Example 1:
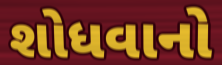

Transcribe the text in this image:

શોધવાનો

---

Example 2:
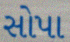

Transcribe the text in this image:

સોપા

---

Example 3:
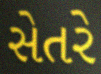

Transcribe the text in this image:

સેતરે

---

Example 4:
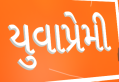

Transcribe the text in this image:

યુવાપ્રેમી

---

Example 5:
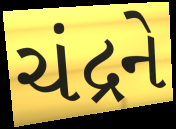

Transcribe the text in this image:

ચંદ્રને